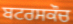
ਬਟਰਸਕੌਚ